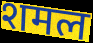
शमल